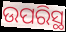
ଉପରିସ୍ଥ